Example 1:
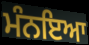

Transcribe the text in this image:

ਮੰਨਇਆ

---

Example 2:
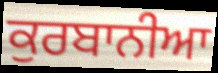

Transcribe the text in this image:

ਕੁਰਬਾਨੀਆ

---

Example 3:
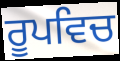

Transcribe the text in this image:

ਰੂਪਵਿਚ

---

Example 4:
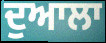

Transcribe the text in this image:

ਦੁਆਲਾ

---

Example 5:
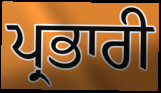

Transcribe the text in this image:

ਪ੍ਰਭਾਰੀ